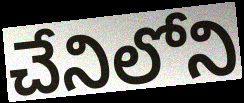
చేనిలోని